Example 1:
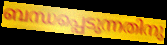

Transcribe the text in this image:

ബന്ധപ്പെടുന്നതിനു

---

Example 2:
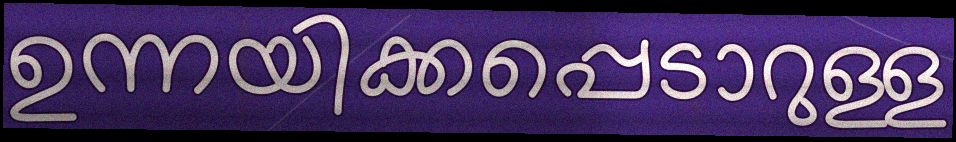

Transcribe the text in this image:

ഉന്നയിക്കപ്പെടാറുള്ള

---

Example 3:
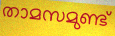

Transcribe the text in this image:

താമസമുണ്ട്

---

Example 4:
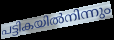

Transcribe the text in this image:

പട്ടികയിൽനിന്നും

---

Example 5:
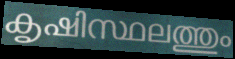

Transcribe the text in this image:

കൃഷിസ്ഥലത്തും